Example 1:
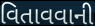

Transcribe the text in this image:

વિતાવવાની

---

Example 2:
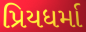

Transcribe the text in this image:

પ્રિયધર્મા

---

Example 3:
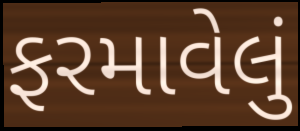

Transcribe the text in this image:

ફરમાવેલું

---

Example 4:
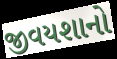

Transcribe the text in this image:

જીવયશાનો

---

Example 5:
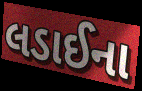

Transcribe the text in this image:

લડાઈના